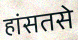
हांसतसे